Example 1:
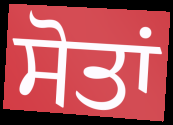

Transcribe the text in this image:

ਸੋਤਾਂ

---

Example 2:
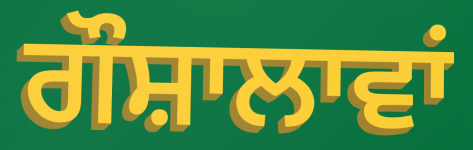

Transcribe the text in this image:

ਗੌਸ਼ਾਲਾਵਾਂ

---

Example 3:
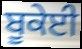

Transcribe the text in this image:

ਬੂਕੇਈ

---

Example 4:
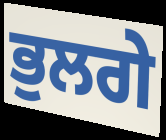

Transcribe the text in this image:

ਭੁਲਗੇ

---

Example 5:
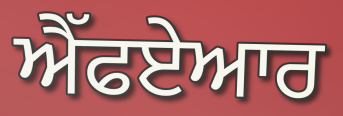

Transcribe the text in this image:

ਐੱਫਏਆਰ